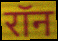
रॉन